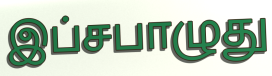
இப்சபாழுது